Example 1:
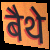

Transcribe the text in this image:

बैथे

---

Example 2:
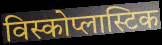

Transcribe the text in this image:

विस्कोप्लास्टिक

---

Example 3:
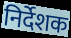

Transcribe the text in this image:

निर्देशक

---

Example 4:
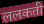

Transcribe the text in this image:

ललकती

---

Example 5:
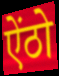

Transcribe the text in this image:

ऐंठो